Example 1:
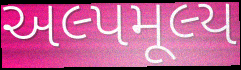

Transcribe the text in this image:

અલ્પમૂલ્ય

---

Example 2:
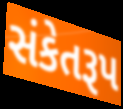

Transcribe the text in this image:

સંકેતરૂપ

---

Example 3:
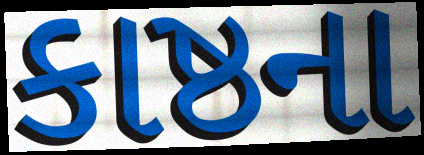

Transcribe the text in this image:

કાષ્ઠના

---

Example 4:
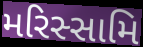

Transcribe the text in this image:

મરિસ્સામિ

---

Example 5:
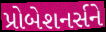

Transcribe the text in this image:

પ્રોબેશનર્સને